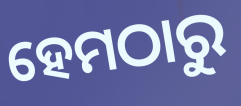
ହେମଠାରୁ